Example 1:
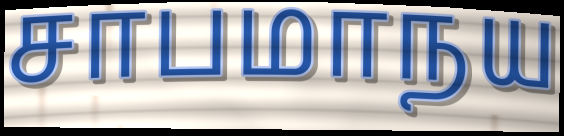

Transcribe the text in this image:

சாபமாநய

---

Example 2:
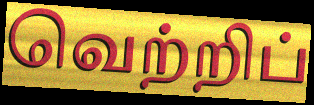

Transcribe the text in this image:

வெற்றிப்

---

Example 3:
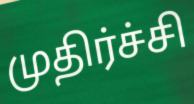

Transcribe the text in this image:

முதிர்ச்சி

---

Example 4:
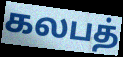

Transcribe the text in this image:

கலபத்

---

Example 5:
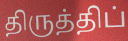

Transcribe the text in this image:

திருத்திப்